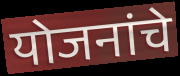
योजनांचे